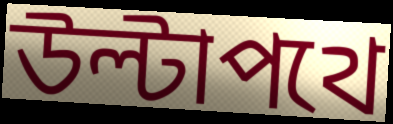
উল্টাপথে